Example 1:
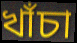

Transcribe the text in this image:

খাঁচা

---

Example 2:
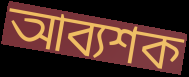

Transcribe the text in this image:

আব্যশক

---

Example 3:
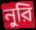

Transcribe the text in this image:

নুরি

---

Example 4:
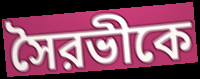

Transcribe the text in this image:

সৈরভীকে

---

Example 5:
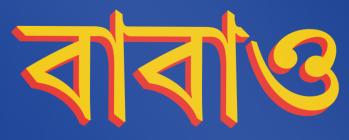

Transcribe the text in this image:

বাবাও